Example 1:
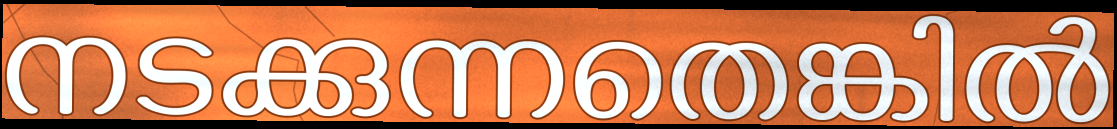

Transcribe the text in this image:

നടക്കുന്നതെങ്കിൽ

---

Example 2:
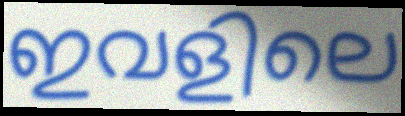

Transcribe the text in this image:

ഇവളിലെ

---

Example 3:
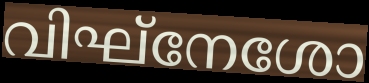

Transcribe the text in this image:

വിഘ്നേശോ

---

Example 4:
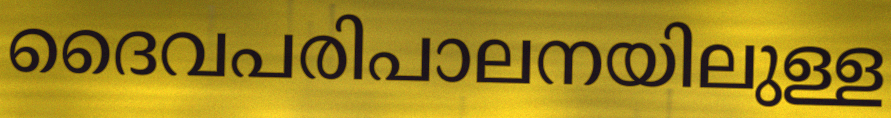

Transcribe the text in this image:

ദൈവപരിപാലനയിലുള്ള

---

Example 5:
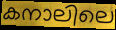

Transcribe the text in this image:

കനാലിലെ